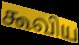
கூவிய